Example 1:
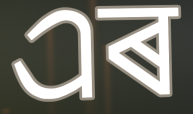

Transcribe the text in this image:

এৰ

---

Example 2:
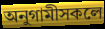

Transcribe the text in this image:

অনুগামীসকলে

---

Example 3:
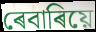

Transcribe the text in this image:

ৰেবাৰিয়ে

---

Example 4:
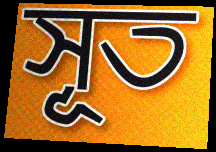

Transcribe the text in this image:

সূত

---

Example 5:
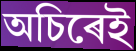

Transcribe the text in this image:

অচিৰেই